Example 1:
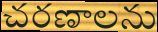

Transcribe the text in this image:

చరణాలను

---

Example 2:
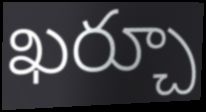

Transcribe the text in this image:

ఖర్చూ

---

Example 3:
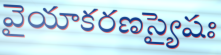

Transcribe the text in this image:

వైయాకరణస్యైషః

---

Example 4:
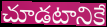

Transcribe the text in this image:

చూడటానికే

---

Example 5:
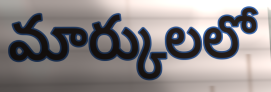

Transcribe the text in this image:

మార్కులలో